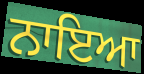
ਨਾਇਆ